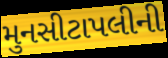
મુનસીટાપલીની